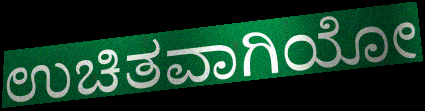
ಉಚಿತವಾಗಿಯೋ